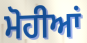
ਮੋਹੀਆਂ